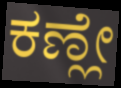
ಕಣ್ಲೇ